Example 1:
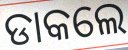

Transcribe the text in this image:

ଡାକଲେ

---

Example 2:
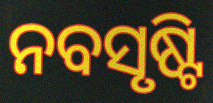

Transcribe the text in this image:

ନବସୃଷ୍ଟି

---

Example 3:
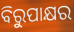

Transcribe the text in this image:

ବିରୁପାକ୍ଷର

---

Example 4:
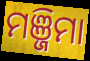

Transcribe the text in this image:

ମଞ୍ଜିମା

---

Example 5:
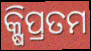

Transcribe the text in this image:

କ୍ଷିପ୍ରତମ